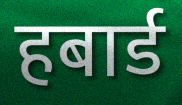
हबार्ड